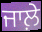
ਜਾਲ਼ੇ